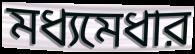
মধ্যমেধার